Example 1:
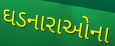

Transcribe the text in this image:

ઘડનારાઓના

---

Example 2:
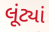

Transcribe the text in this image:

લૂંટ્યાં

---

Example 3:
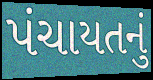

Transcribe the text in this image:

પંચાયતનું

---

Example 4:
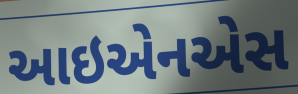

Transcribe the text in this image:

આઇએનએસ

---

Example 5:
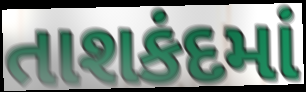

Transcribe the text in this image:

તાશકંદમાં